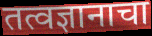
तत्वज्ञानाचा